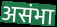
असंभा